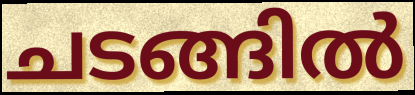
ചടങ്ങിൽ